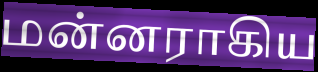
மன்னராகிய